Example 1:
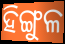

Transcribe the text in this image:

ହିଙ୍ଗୁଳ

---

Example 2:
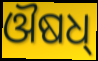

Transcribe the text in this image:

ଔଷଧ୍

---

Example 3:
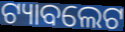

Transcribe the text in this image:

ଟ୍ୟାବଲେଟ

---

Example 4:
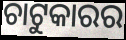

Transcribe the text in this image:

ଚାଟୁକାରର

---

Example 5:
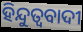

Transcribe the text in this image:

ହିନ୍ଦୁତ୍ୱବାଦୀ